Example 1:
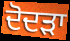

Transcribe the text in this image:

ਦੋਦੜਾ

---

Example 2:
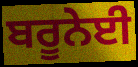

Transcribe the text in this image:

ਬਰੂਨੇਈ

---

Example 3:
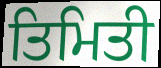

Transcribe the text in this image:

ਤਿਮਿਤੀ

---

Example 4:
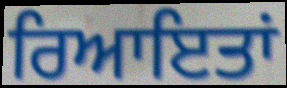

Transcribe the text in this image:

ਰਿਆਇਤਾਂ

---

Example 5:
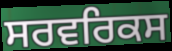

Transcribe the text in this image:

ਸਰਵਰਿਕਸ